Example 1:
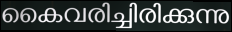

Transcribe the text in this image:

കൈവരിച്ചിരിക്കുന്നു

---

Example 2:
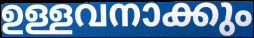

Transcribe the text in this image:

ഉള്ളവനാക്കും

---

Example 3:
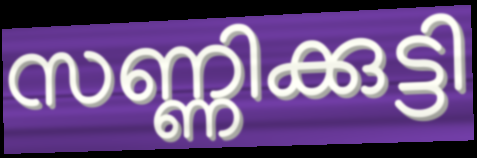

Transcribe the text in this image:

സണ്ണിക്കുട്ടി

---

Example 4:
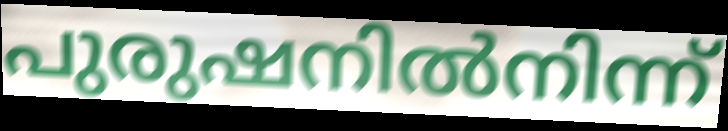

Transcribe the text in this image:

പുരുഷനിൽനിന്ന്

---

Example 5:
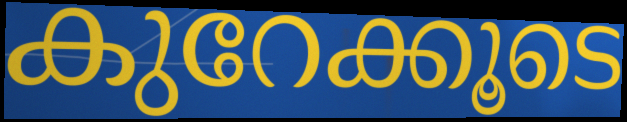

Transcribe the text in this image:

കുറേക്കൂടെ